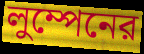
লুম্পেনের